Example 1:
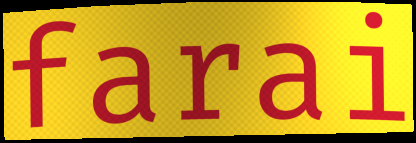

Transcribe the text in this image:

farai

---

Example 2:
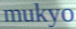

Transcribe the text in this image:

mukyo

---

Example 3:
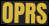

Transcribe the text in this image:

OPRS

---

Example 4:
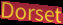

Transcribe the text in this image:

Dorset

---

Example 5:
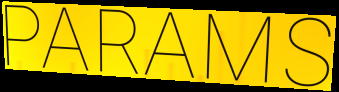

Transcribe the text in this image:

PARAMS